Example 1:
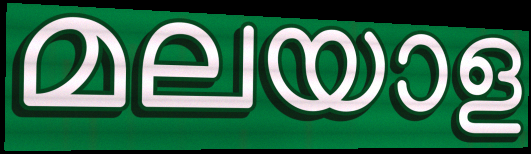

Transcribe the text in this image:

മലയാള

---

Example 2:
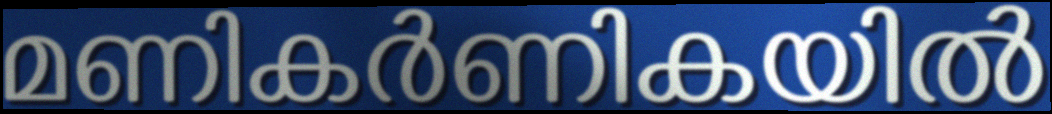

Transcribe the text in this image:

മണികർണികയിൽ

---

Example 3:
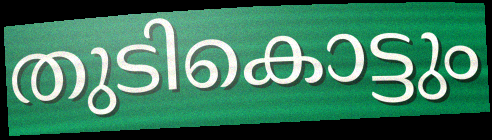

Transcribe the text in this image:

തുടികൊട്ടും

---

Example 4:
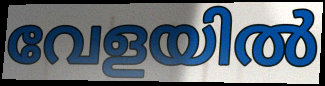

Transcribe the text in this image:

വേളയിൽ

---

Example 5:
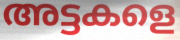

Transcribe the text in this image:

അട്ടകളെ